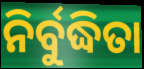
ନିର୍ବୁଦ୍ଧିତା